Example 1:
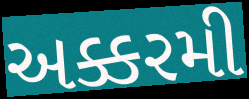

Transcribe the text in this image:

અક્કરમી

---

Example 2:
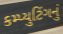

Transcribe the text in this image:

કમ્પ્યુટિંગનું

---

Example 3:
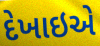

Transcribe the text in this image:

દેખાઇએ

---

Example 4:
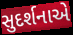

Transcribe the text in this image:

સુદર્શનાએ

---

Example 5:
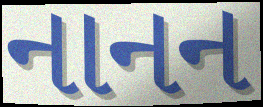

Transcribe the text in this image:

નાનન